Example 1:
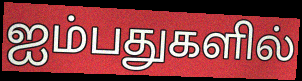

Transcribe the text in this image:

ஐம்பதுகளில்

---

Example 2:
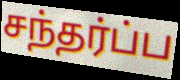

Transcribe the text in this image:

சந்தர்ப்ப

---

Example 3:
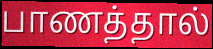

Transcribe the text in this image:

பாணத்தால்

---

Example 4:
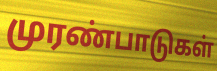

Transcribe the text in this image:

முரண்பாடுகள்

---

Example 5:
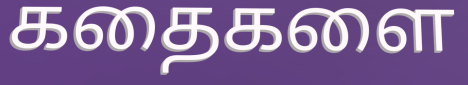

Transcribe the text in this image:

கதைகளை